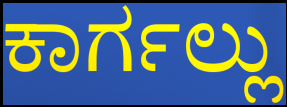
ಕಾರ್ಗಲ್ಲು